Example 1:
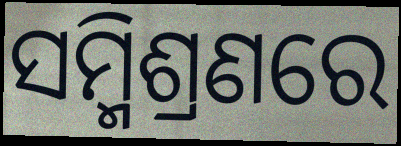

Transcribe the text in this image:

ସମ୍ମିଶ୍ରଣରେ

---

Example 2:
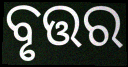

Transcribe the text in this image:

ବୃତ୍ତର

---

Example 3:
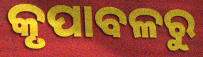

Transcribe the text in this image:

କୃପାବଳରୁ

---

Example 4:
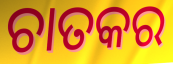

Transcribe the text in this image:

ଚାତକର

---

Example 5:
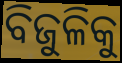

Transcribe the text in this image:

ବିଜୁଳିକୁ